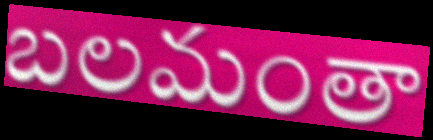
బలమంతా